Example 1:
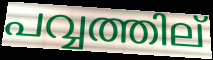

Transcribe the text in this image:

പവ്വത്തില്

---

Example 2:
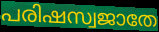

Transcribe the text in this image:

പരിഷസ്വജാതേ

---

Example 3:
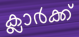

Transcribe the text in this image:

ക്ലാർക്ക്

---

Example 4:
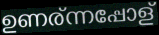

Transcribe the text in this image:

ഉണര്ന്നപ്പോള്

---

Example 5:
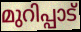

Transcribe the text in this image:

മുറിപ്പാട്